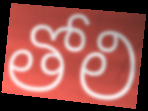
తోలి